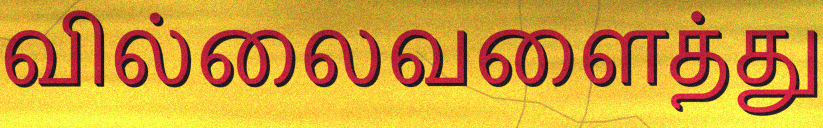
வில்லைவளைத்து